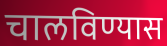
चालविण्यास